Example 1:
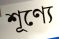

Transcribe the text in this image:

শূণ্যে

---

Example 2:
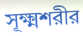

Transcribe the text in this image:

সূক্ষ্মশরীর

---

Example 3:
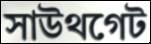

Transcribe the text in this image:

সাউথগেট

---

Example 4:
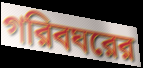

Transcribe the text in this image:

গরিবঘরের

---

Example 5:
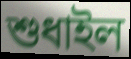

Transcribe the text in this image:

শুধাইল